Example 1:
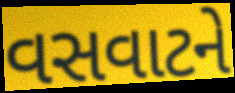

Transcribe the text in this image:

વસવાટને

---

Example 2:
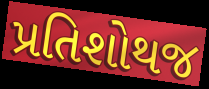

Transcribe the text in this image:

પ્રતિશોથજ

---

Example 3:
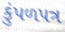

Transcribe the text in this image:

કુંપળપત્ર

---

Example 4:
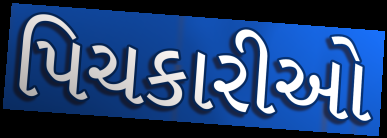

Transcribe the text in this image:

પિચકારીઓ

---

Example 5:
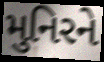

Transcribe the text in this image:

મુનિરને